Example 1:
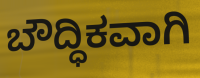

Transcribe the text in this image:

ಬೌದ್ಧಿಕವಾಗಿ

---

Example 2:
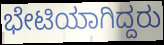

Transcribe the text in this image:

ಭೇಟಿಯಾಗಿದ್ದರು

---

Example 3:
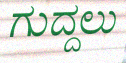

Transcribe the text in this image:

ಗುದ್ದಲು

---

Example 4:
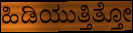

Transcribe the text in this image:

ಹಿಡಿಯುತ್ತಿತ್ತೋ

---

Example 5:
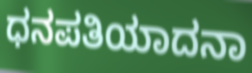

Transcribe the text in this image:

ಧನಪತಿಯಾದನಾ